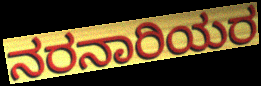
ನರನಾರಿಯರ